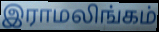
இராமலிங்கம்